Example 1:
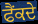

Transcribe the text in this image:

ਫੈਂਕਦੇ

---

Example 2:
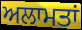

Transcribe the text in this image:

ਅਲਾਮਤਾਂ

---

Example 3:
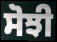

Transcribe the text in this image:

ਸੋਝੀ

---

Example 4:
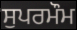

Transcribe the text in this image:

ਸੁਪਰਮੌਮ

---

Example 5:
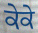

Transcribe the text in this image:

ਕੇਕੇ